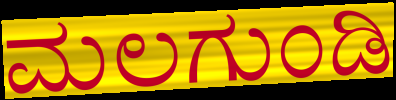
ಮಲಗುಂಡಿ